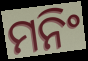
ମନିଂ